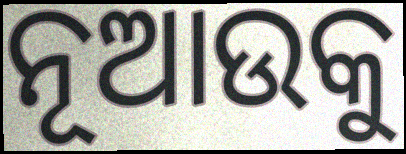
ନୂଆଉକୁ